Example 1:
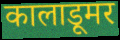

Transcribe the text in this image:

कालाडूमर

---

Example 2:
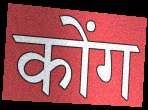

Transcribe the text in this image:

कोंग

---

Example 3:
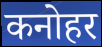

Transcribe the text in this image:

कनोहर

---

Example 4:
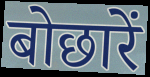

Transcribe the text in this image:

बोछारें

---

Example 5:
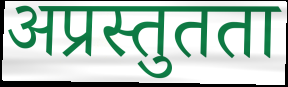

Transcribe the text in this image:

अप्रस्तुतता